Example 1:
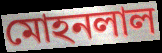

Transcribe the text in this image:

মোহনলাল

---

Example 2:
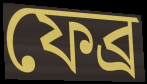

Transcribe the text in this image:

ফেব্র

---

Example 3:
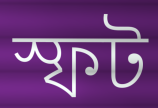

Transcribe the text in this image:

স্ফট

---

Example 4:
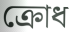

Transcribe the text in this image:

ক্রোধ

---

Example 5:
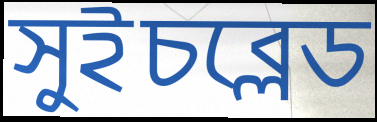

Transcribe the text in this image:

সুইচব্লেড